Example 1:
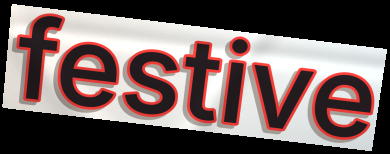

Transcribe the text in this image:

festive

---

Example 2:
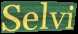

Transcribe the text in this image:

Selvi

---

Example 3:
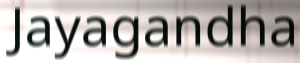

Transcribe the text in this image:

Jayagandha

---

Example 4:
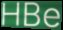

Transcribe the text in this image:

HBe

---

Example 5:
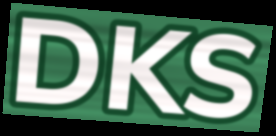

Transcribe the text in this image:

DKS